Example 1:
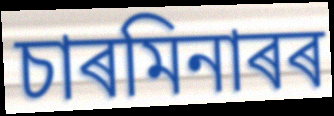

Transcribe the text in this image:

চাৰমিনাৰৰ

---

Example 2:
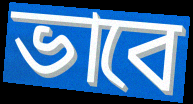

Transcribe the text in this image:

ভাবে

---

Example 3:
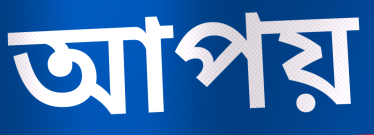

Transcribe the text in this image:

আপয়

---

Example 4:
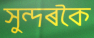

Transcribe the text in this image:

সুন্দৰকৈ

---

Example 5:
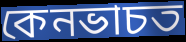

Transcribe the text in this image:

কেনভাচত